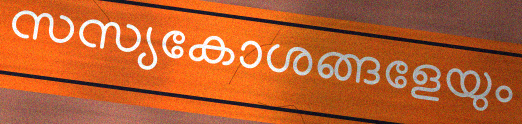
സസ്യകോശങ്ങളേയും